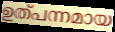
ഉത്പന്നമായ